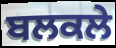
ਬਲਕਲੇ